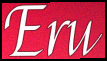
Eru